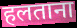
हलताना